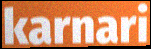
karnari